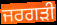
ਜਰਗੜੀ